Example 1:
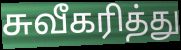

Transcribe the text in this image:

சுவீகரித்து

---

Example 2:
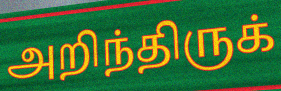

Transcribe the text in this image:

அறிந்திருக்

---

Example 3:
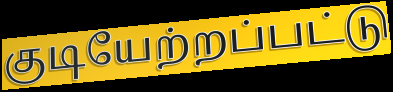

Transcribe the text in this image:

குடியேற்றப்பட்டு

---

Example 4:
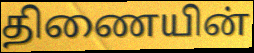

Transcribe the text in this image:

திணையின்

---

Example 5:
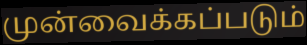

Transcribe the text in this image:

முன்வைக்கப்படும்